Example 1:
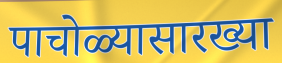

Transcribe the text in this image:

पाचोळ्यासारख्या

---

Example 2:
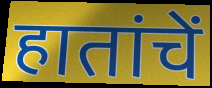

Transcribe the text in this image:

हातांचें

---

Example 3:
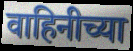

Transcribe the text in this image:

वाहिनीच्या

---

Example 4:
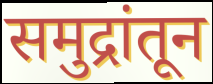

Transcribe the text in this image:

समुद्रांतून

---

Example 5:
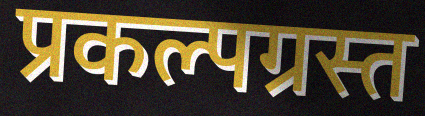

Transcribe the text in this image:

प्रकल्पग्रस्त